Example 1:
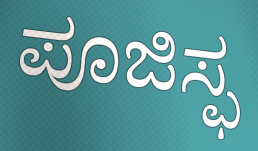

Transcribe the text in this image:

ಪೂಜಿಸ್ಫ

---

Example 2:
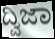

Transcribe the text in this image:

ದ್ವಿಜಾ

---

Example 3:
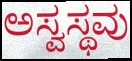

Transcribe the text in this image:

ಅಸ್ವಸ್ಥವು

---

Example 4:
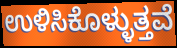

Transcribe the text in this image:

ಉಳಿಸಿಕೊಳ್ಳುತ್ತವೆ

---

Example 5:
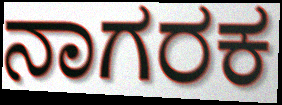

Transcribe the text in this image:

ನಾಗರಕ